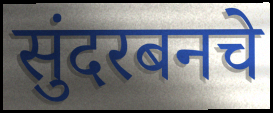
सुंदरबनचे